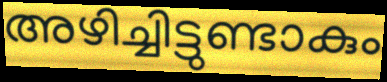
അഴിച്ചിട്ടുണ്ടാകും